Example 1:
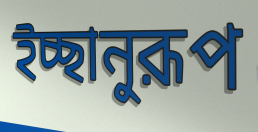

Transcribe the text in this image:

ইচ্ছানুরূপ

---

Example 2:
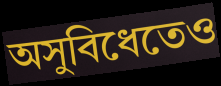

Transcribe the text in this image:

অসুবিধেতেও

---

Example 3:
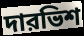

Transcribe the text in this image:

দারভিশ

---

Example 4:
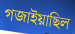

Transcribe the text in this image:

গজাইয়াছিল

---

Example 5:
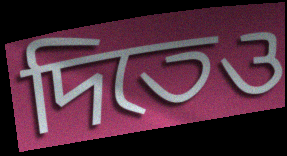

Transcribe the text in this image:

দিতেও